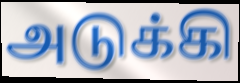
அடுக்கி